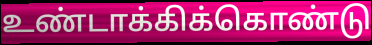
உண்டாக்கிக்கொண்டு